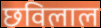
छविलाल